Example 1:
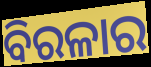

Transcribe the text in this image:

ବିରଳାର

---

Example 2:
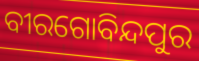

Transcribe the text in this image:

ବୀରଗୋବିନ୍ଦପୁର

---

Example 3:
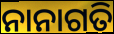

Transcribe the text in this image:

ନାନାଗତି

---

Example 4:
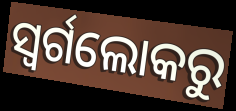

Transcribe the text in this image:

ସ୍ଵର୍ଗଲୋକରୁ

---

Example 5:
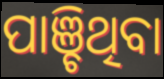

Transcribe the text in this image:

ପାଞ୍ଚିଥିବା